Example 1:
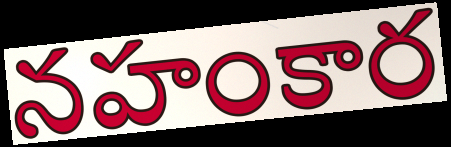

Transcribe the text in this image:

నహంకార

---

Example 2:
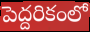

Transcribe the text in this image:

పెద్దరికంలో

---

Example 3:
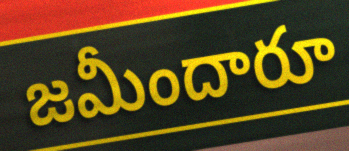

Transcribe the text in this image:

జమీందారూ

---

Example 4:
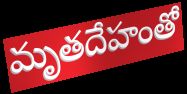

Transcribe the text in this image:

మృతదేహంతో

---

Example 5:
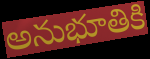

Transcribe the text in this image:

అనుభూతికి